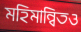
মহিমান্বিতও